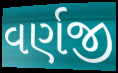
વર્ણજી